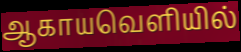
ஆகாயவெளியில்